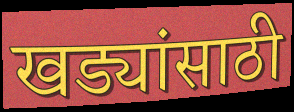
खड्यांसाठी